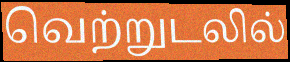
வெற்றுடலில்